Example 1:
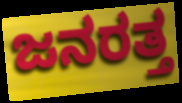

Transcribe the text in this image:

ಜನರತ್ತ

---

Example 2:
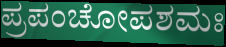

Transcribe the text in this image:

ಪ್ರಪಂಚೋಪಶಮಃ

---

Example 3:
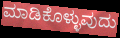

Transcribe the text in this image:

ಮಾಡಿಕೊಳ್ಳುವುದು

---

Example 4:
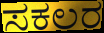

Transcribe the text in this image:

ಸಕಲರ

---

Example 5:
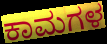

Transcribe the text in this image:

ಕಾಮಗಳ